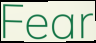
Fear